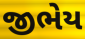
જીભેય